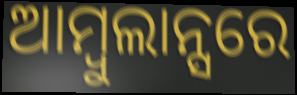
ଆମ୍ବୁଲାନ୍ସରେ